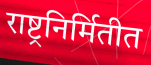
राष्ट्रनिर्मितीत